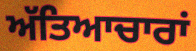
ਅੱਤਿਆਚਾਰਾਂ